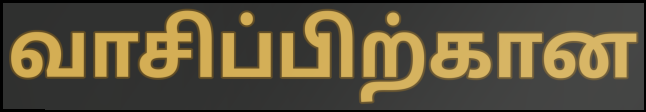
வாசிப்பிற்கான